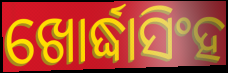
ଖୋର୍ଦ୍ଧାସିଂହ